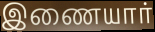
இணையார்